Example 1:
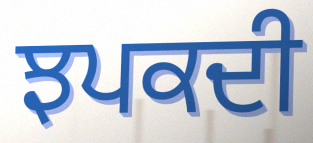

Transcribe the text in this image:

ਝਪਕਦੀ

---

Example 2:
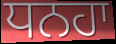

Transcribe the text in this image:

ਧਨਹਾ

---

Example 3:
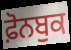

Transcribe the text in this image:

ਫ਼ੋਨਬੁਕ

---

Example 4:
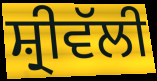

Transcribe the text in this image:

ਸ਼੍ਰੀਵੱਲੀ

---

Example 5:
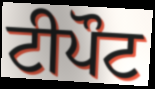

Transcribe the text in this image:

ਟੀਪੌਟ